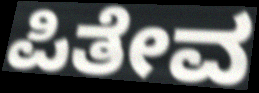
ಪಿತೇವ